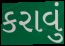
કરાવું